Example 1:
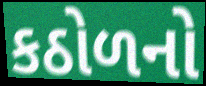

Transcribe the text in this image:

કઠોળનો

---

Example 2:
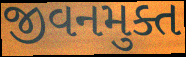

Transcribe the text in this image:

જીવનમુક્ત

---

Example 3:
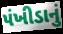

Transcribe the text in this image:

પંખીડાનું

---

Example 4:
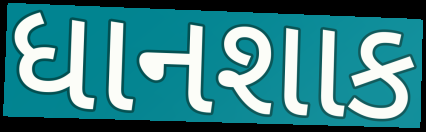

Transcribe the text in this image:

ધાનશાક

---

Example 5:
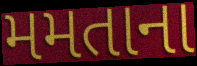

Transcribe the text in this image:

મમતાના